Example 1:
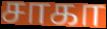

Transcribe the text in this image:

சாகா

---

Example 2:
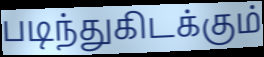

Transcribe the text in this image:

படிந்துகிடக்கும்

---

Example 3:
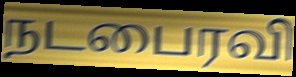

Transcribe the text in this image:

நடபைரவி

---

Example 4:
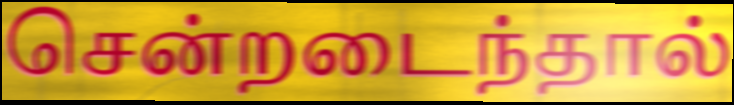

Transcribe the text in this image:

சென்றடைந்தால்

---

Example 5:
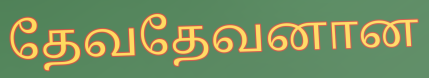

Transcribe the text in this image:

தேவதேவனான